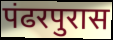
पंढरपुरास